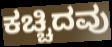
ಕಚ್ಚಿದವು